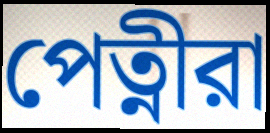
পেত্নীরা